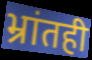
भ्रांतही